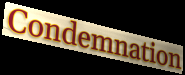
Condemnation